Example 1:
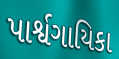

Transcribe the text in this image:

પાર્શ્વગાયિકા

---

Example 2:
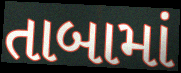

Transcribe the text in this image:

તાબામાં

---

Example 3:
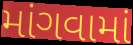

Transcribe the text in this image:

માંગવામાં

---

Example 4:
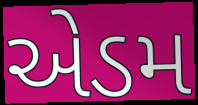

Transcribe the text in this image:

એડમ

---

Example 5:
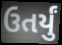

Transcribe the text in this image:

ઉતર્યું